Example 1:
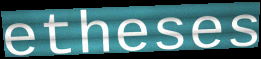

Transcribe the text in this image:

etheses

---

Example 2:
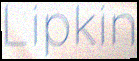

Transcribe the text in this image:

Lipkin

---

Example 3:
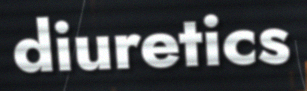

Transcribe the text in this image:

diuretics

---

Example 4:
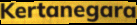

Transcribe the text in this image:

Kertanegara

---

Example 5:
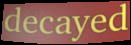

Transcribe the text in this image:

decayed